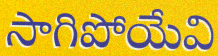
సాగిపోయేవి